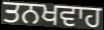
ਤਨਖਵਾਹ